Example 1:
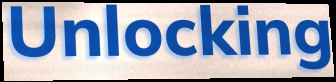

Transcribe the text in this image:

Unlocking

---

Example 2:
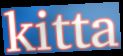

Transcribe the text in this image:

kitta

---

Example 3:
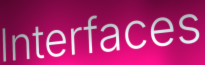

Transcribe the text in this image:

Interfaces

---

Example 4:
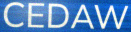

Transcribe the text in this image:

CEDAW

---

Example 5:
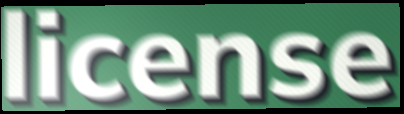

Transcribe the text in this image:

license